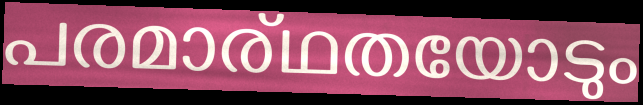
പരമാര്ഥതയോടും